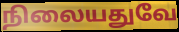
நிலையதுவே